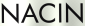
NACIN